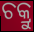
ଚକ୍ରୁ